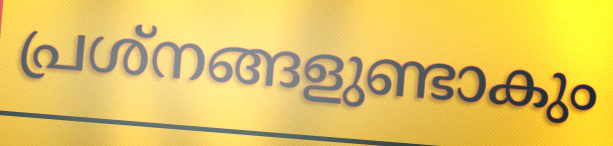
പ്രശ്നങ്ങളുണ്ടാകും